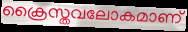
ക്രൈസ്തവലോകമാണ്